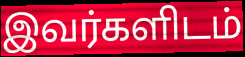
இவர்களிடம்